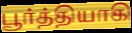
பூர்த்தியாகி